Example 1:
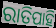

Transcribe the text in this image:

ରାତିପାହି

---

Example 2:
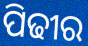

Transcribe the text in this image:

ପିଢୀର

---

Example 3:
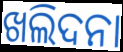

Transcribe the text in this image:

ଖଲିଦନା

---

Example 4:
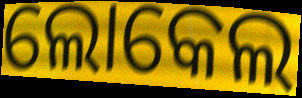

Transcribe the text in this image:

ଲୋକେଲ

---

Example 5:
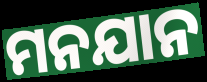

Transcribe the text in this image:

ମନଯାନ